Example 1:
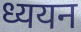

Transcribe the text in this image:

ध्ययन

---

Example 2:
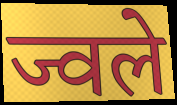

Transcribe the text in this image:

ज्वले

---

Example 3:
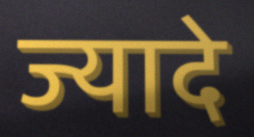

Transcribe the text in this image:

ज्यादे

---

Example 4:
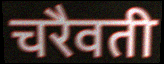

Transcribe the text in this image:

चरैवती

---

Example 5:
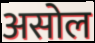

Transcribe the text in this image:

असोल